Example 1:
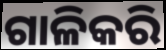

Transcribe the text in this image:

ଗାଳିକରି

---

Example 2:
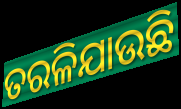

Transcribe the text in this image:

ତରଳିଯାଉଛି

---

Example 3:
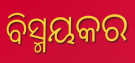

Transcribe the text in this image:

ବିସ୍ମୟକର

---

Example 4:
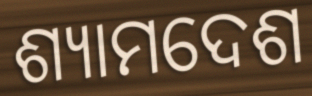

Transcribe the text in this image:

ଶ୍ୟାମଦେଶ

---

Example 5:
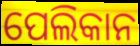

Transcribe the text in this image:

ପେଲିକାନ